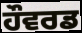
ਹੌਵਰਡ